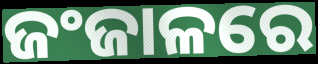
ଜଂଜାଳରେ